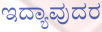
ಇದ್ಯಾವುದರ